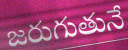
జరుగుతునే